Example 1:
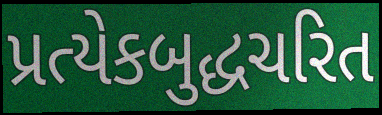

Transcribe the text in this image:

પ્રત્યેકબુદ્ધચરિત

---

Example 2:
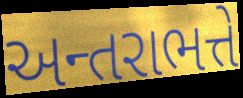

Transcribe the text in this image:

અન્તરાભત્તે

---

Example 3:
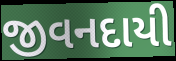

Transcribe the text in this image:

જીવનદાયી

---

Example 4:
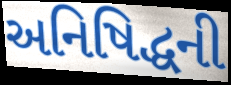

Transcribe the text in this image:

અનિષિદ્ધની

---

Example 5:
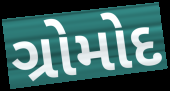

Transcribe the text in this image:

ગ્રોમોદ